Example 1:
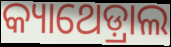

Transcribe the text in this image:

କ୍ୟାଥେଡ଼୍ରାଲ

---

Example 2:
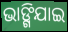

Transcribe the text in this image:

ଭାଙ୍ଗିଯାଇ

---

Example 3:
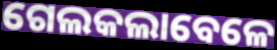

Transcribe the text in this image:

ଗେଲକଲାବେଳେ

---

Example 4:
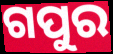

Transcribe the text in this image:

ଗପୁର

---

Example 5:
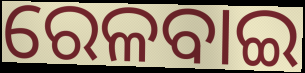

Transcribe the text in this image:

ରେଳବାଇ